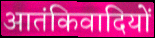
आतंकिवादियों